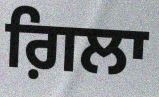
ਗ਼ਿਲਾ